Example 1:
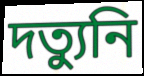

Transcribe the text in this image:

দত্যুনি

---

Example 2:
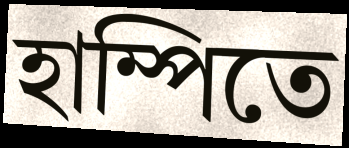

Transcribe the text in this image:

হাম্পিতে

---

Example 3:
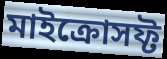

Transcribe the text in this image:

মাইক্রোসফ্ট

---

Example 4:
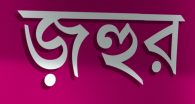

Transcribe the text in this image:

জ়হুর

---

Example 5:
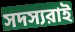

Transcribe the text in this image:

সদস্যরাই